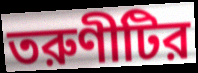
তরুণীটির